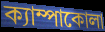
ক্যাম্পাকোলা